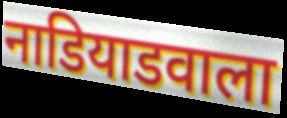
नाडियाडवाला